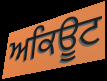
ਅਕਿਊਟ